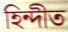
হিন্দীত